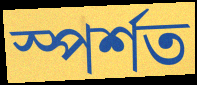
স্পৰ্শত